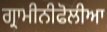
ਗ੍ਰਾਮੀਨੀਫੋਲੀਆ